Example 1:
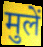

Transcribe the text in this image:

मुलें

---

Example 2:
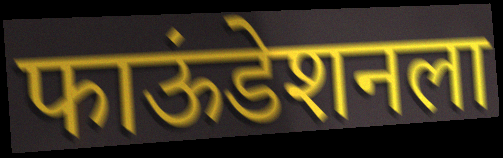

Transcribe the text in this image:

फाऊंडेशनला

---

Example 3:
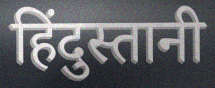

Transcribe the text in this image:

हिंदुस्तानी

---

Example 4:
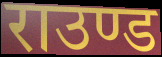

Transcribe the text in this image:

राउण्ड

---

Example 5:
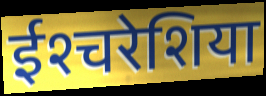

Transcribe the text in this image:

ईश्चरेशिया